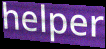
helper